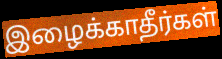
இழைக்காதீர்கள்